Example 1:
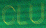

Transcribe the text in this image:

CLU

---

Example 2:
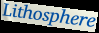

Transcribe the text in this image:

Lithosphere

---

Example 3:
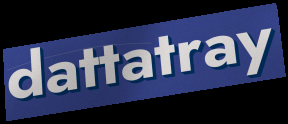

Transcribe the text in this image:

dattatray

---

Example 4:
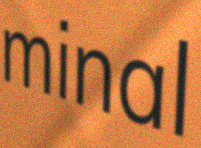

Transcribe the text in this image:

minal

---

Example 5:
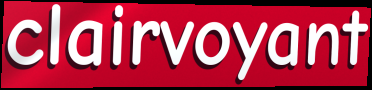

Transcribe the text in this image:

clairvoyant